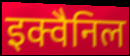
इक्वैनिल